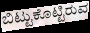
ಬಿಟ್ಟುಕೊಟ್ಟಿರುವ